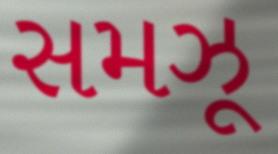
સમઝૂ